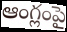
ఆంగ్లంపై